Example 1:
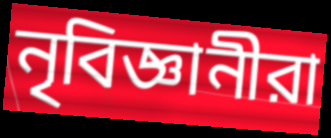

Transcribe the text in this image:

নৃবিজ্ঞানীরা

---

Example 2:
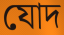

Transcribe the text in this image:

যোদ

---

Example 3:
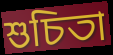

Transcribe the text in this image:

শুচিতা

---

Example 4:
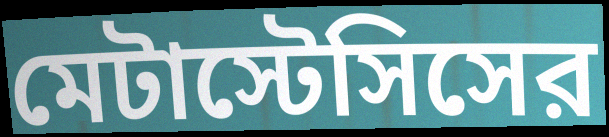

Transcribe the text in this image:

মেটাস্টেসিসের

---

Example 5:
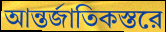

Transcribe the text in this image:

আন্তর্জাতিকস্তরে